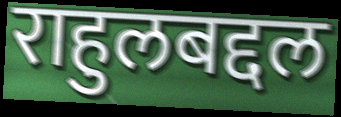
राहुलबद्दल